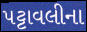
પટ્ટાવલીના